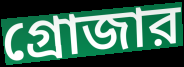
গ্রোজার